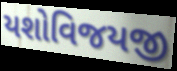
યશોવિજયજી